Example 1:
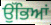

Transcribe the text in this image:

ਉੱਭਿਆਂ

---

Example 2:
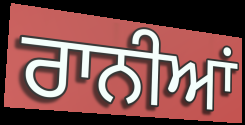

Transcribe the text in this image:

ਰਾਨੀਆਂ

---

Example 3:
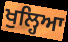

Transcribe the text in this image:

ਖੁਲ੍ਹਿਆ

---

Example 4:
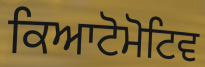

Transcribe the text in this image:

ਕਿਆਟੋਮੋਟਿਵ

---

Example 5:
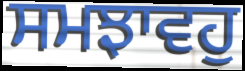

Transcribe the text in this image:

ਸਮਝਾਵਹੁ